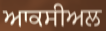
ਆਕਸੀਅਲ